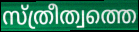
സ്ത്രീത്വത്തെ